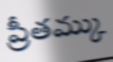
ప్రీతమ్కు